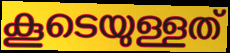
കൂടെയുള്ളത്